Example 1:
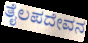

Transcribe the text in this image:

ತೈಲಪದೇವನ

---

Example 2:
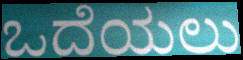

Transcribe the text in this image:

ಒದೆಯಲು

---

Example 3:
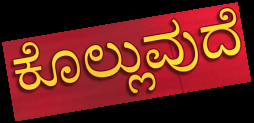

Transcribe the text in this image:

ಕೊಲ್ಲುವುದೆ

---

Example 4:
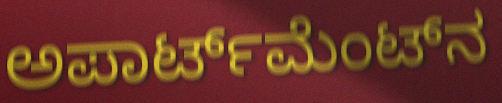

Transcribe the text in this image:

ಅಪಾರ್ಟ್‌ಮೆಂಟ್‌ನ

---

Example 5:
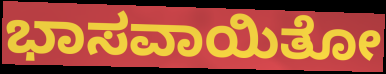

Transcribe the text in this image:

ಭಾಸವಾಯಿತೋ